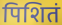
पिशितं